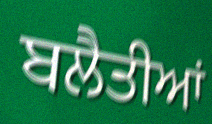
ਬਲੈਤੀਆਂ